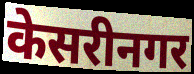
केसरीनगर